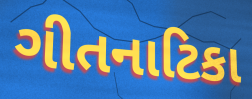
ગીતનાટિકા